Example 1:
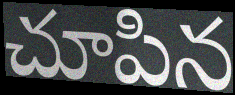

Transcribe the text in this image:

చూపిన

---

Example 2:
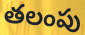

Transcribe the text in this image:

తలంపు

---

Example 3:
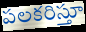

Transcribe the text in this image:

పలకరిస్తూ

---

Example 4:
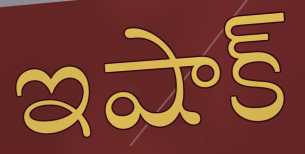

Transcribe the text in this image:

ఇషాక్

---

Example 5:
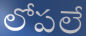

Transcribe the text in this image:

లోపలే